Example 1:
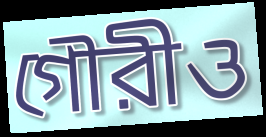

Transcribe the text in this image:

গৌরীও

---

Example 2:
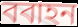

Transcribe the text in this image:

ববাহন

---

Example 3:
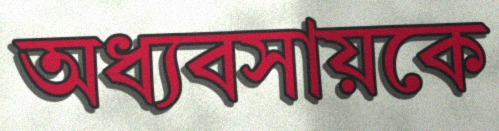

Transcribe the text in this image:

অধ্যবসায়কে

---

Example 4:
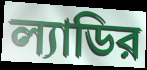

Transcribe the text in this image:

ল্যাডির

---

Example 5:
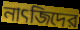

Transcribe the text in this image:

নাৎজিদের